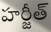
హర్జీత్